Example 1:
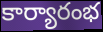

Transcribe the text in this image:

కార్యారంభ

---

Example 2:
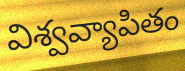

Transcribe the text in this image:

విశ్వవ్యాపితం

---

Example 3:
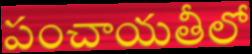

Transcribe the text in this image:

పంచాయతీలో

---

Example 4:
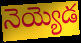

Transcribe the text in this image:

నెయ్యెడ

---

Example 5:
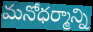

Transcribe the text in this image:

మనోధర్మాన్ని